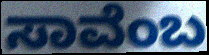
ಸಾವೆಂಬ